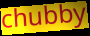
chubby